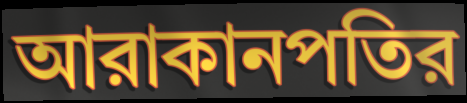
আরাকানপতির